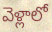
వెళ్లాలో